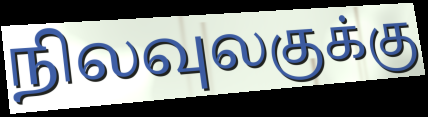
நிலவுலகுக்கு